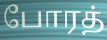
போரத்